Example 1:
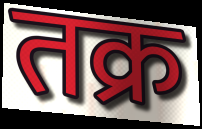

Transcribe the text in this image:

तक्र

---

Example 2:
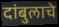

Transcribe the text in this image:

दांबुलाचे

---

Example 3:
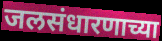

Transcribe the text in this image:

जलसंधारणाच्या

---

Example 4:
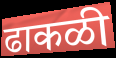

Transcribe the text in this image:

ढाकळी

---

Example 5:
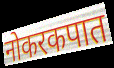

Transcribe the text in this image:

नोकरकपात